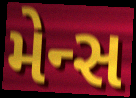
મેન્સ